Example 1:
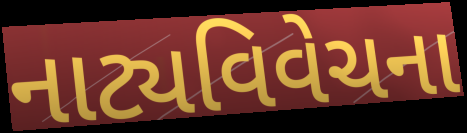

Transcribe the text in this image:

નાટ્યવિવેચના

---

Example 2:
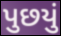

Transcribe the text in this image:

પુછયું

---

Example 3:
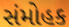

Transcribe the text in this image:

સંમોહક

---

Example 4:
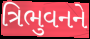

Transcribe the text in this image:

ત્રિભુવનને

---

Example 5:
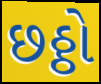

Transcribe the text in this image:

છઠ્ઠો